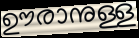
ഊരാനുള്ള